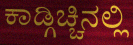
ಕಾಡ್ಗಿಚ್ಚಿನಲ್ಲಿ